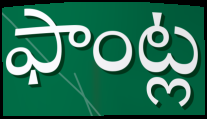
ఫాంట్ల